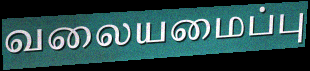
வலையமைப்பு